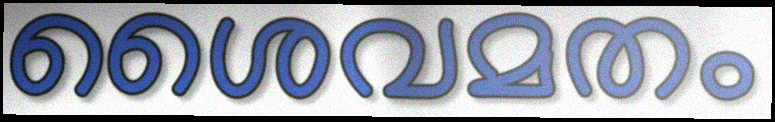
ശൈവമതം